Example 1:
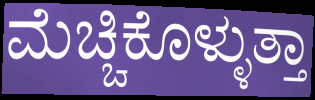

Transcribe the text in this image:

ಮೆಚ್ಚಿಕೊಳ್ಳುತ್ತಾ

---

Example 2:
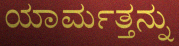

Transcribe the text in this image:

ಯಾರ್ಮತ್ತನ್ನು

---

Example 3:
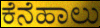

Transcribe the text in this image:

ಕೆನೆಹಾಲು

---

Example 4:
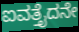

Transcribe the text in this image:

ಐವತ್ತೈದನೇ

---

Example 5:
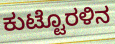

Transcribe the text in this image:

ಕುಟ್ಟೊರಳಿನ